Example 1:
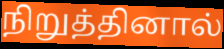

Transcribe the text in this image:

நிறுத்தினால்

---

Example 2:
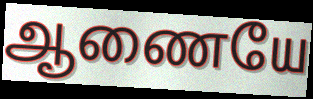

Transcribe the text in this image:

ஆணையே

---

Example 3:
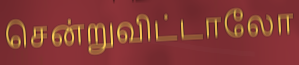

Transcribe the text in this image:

சென்றுவிட்டாலோ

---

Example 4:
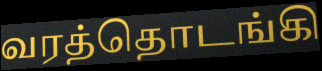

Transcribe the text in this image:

வரத்தொடங்கி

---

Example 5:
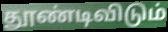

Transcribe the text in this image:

தூண்டிவிடும்